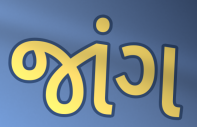
જાંગ